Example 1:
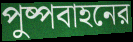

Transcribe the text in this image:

পুষ্পবাহনের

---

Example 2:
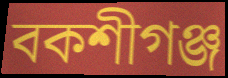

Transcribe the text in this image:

বকশীগঞ্জ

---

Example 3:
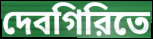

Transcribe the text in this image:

দেবগিরিতে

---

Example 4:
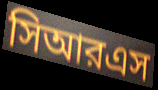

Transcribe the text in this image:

সিআরএস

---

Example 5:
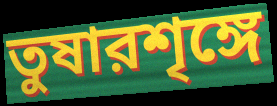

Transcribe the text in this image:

তুষারশৃঙ্গে